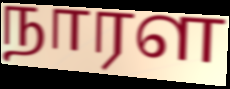
நாரள